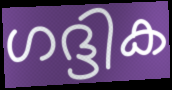
ഗദ്ദിക